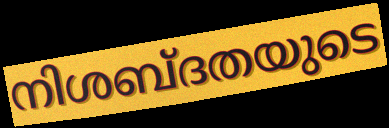
നിശബ്ദതയുടെ